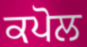
ਕਪੋਲ